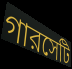
গারসেটি